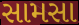
સામસા